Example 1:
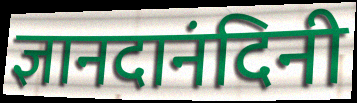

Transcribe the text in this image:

ज्ञानदानंदिनी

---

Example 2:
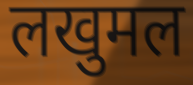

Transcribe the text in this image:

लखुमल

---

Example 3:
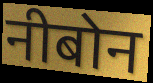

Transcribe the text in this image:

नीबोन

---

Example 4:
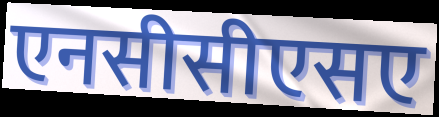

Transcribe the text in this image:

एनसीसीएसए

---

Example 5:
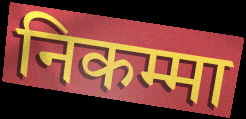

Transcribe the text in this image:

निकम्मा